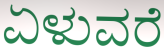
ಏಳುವರೆ